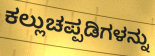
ಕಲ್ಲುಚಪ್ಪಡಿಗಳನ್ನು